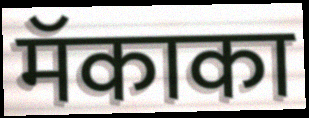
मॅकाका